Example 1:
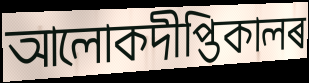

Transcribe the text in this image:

আলোকদীপ্তিকালৰ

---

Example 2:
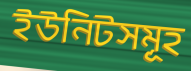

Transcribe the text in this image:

ইউনিটসমূহ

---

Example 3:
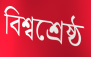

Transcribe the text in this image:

বিশ্বশ্ৰেষ্ঠ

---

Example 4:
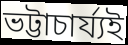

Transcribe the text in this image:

ভট্টাচাৰ্য্যই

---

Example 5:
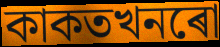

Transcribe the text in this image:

কাকতখনৰো